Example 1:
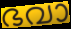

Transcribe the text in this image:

ഭവാ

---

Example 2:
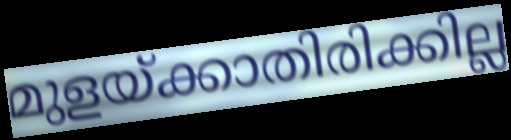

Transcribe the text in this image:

മുളയ്ക്കാതിരിക്കില്ല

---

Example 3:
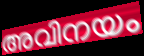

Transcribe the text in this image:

അവിനയം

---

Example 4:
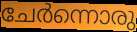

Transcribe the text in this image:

ചേർന്നൊരു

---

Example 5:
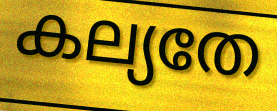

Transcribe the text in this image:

കല്യതേ